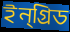
ইন্‌গ্রিড